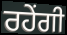
ਰਹੇਂਗੀ